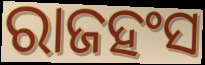
ରାଜହଂସ